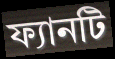
ফ্যানটি